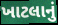
ખાટલાનું